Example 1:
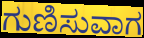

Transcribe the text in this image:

ಗುಣಿಸುವಾಗ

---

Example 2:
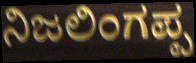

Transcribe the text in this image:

ನಿಜಲಿಂಗಪ್ಪ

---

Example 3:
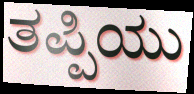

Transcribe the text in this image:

ತಪ್ಪಿಯು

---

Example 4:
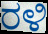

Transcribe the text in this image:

ರಳಿ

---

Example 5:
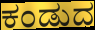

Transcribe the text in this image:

ಕಂಡುದ